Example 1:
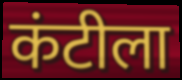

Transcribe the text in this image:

कंटीला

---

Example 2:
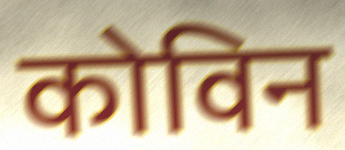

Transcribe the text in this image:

कोविन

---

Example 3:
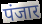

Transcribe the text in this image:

पंजार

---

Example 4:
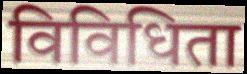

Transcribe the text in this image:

विविधिता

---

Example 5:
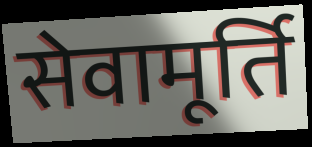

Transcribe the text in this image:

सेवामूर्ति